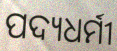
ପଦ୍ୟଧର୍ମୀ